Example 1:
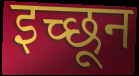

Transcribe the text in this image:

इच्छून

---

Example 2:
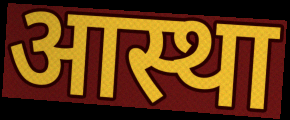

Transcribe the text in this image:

आस्था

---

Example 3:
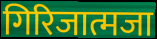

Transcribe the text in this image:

गिरिजात्मजा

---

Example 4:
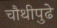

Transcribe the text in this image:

चौथीपुढे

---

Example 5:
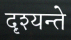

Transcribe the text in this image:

दृश्यन्ते